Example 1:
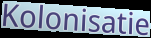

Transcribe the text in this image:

Kolonisatie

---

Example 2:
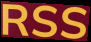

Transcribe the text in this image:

RSS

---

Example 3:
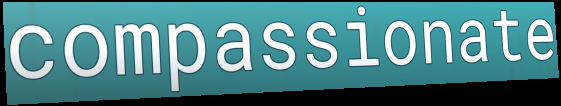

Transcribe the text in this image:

compassionate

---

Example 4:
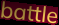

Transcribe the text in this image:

battle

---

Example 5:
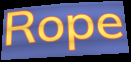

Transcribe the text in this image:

Rope